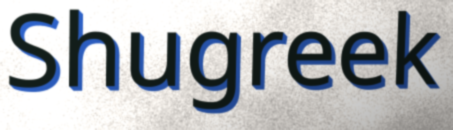
Shugreek